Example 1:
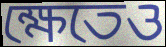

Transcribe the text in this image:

ক্ষেতেও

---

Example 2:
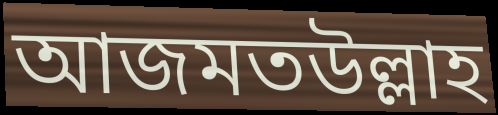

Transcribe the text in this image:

আজমতউল্লাহ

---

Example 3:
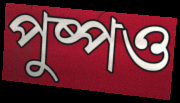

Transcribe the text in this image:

পুষ্পও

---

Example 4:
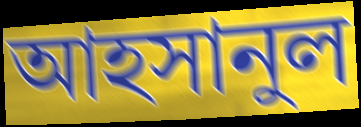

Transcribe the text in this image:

আহসানুল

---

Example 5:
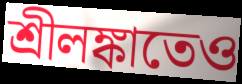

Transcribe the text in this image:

শ্রীলঙ্কাতেও